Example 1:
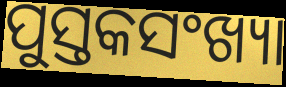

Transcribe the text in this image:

ପୁସ୍ତକସଂଖ୍ୟା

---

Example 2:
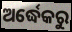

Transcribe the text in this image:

ଅର୍ଦ୍ଧେକରୁ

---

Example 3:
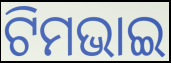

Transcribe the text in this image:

ଟିମଭାଇ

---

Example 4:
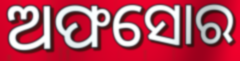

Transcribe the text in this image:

ଅଫସୋର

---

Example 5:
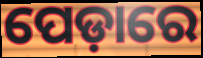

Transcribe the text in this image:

ପେଡ଼ାରେ